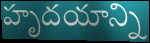
హృదయాన్ని